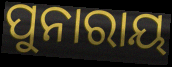
ପୁନାରାୟ